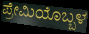
ಪ್ರೇಮಿಯೊಬ್ಬಳ